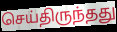
செய்திருந்தது